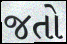
જતો